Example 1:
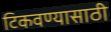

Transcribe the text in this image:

टिकवण्यासाठी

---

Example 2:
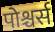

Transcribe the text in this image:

पोश्चर्स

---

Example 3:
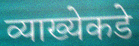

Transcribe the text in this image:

व्याख्येकडे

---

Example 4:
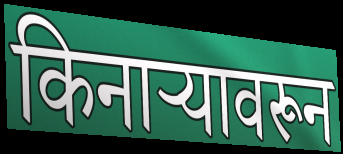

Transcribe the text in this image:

किनाऱ्यावरून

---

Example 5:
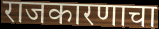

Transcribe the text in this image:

राजकारणाचा